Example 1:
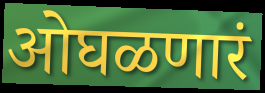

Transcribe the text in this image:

ओघळणारं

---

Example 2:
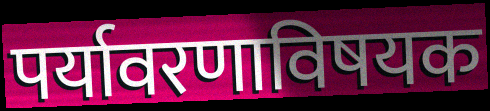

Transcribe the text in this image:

पर्यावरणाविषयक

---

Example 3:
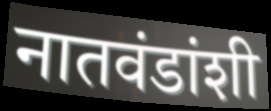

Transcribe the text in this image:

नातवंडांशी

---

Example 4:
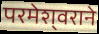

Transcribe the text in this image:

परमेश्वराने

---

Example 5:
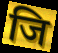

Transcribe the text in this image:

जि